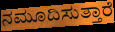
ನಮೂದಿಸುತ್ತಾರೆ